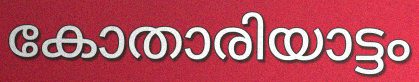
കോതാരിയാട്ടം